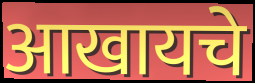
आखायचे